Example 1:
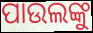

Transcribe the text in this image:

ପାଉଲଙ୍କୁ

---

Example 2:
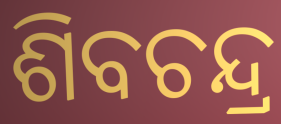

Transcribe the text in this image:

ଶିବଚନ୍ଦ୍ର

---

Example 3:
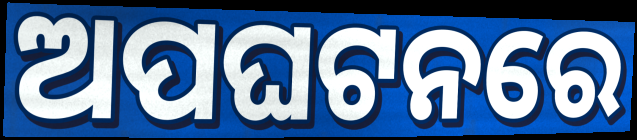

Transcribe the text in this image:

ଅପଘଟନରେ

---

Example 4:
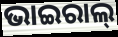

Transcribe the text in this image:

ଭାଇରାଲ୍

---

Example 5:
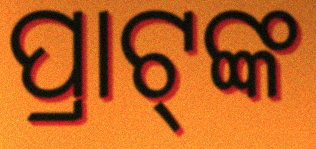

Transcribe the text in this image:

ପ୍ରାଟ୍‍ଙ୍କ